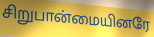
சிறுபான்மையினரே